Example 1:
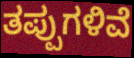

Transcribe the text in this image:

ತಪ್ಪುಗಳಿವೆ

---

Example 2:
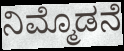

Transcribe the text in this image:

ನಿಮ್ಮೊಡನೆ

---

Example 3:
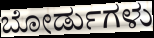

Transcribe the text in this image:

ಬೋರ್ಡುಗಳು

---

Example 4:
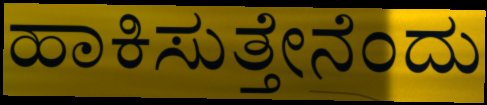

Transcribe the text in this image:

ಹಾಕಿಸುತ್ತೇನೆಂದು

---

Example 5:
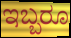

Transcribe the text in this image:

ಇಬ್ಬರೂ